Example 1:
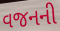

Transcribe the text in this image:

વજનની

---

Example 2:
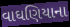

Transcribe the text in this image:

વાઘણિયાના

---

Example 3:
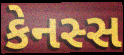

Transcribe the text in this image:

કેનસ્સ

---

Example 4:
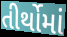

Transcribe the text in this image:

તીર્થોમાં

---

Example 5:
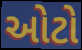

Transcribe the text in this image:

ઓટો